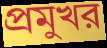
প্রমুখর